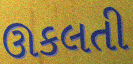
ઊકલતી